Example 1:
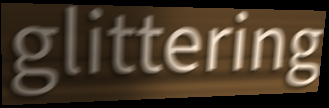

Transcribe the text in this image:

glittering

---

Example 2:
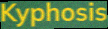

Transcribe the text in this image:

Kyphosis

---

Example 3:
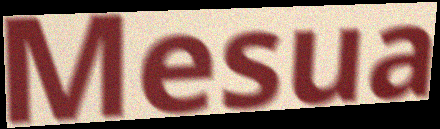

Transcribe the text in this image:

Mesua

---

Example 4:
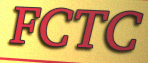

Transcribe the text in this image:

FCTC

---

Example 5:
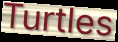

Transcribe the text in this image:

Turtles